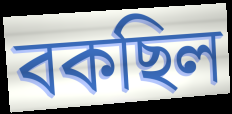
বকছিল